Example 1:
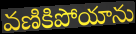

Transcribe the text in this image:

వణికిపోయాను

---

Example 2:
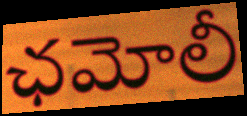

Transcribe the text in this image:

ఛమోలీ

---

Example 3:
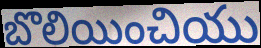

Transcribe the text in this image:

బొలియించియు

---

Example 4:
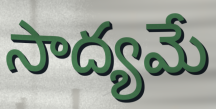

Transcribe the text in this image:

సాద్యమే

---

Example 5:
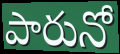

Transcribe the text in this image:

పారునో